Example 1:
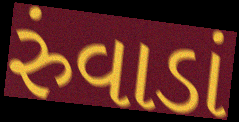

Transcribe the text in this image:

રુંવાડાં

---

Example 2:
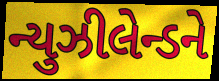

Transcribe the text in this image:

ન્યુઝીલેન્ડને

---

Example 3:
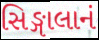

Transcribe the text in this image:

સિઙ્ગાલાનં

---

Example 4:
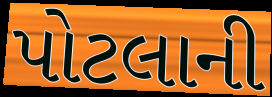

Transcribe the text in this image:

પોટલાની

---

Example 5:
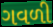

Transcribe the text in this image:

ગવળી